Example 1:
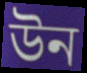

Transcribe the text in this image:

উন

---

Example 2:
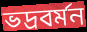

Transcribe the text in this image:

ভদ্রবর্মন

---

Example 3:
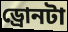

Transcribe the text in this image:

ড্রোনটা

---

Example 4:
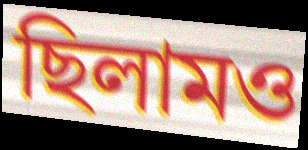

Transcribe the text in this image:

ছিলামও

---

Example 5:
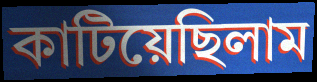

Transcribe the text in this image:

কাটিয়েছিলাম